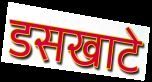
डसखाटे